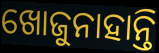
ଖୋଜୁନାହାନ୍ତି